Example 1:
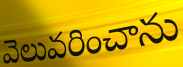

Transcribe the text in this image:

వెలువరించాను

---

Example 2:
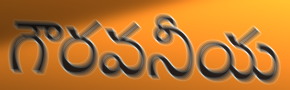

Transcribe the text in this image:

గౌరవనీయ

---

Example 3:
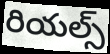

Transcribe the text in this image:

రియల్స్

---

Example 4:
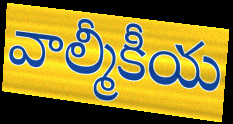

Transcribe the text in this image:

వాల్మీకీయ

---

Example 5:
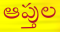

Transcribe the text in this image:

ఆప్తుల